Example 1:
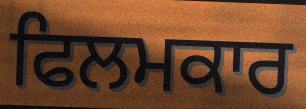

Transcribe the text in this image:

ਫਿਲਮਕਾਰ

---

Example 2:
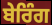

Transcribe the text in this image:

ਬੇਰਿੰਗ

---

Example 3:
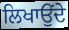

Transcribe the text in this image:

ਲਿਖਾਉਂਦੇ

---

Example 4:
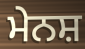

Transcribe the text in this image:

ਮੇਨਸ਼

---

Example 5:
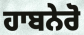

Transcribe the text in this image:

ਹਾਬਨੇਰੋ